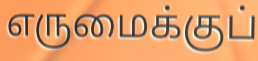
எருமைக்குப்